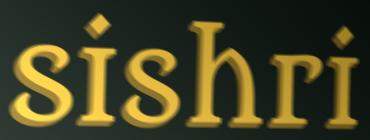
sishri